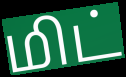
மிட்